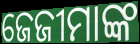
ଜେଜୀମାଙ୍କ